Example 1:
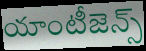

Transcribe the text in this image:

యాంటీజెన్స్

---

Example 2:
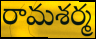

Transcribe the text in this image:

రామశర్మ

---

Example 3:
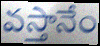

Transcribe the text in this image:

వస్తానేం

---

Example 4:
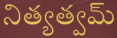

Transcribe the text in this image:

నిత్యత్వమ్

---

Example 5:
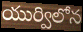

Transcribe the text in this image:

యుర్విలోన